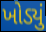
ખોડ્યું